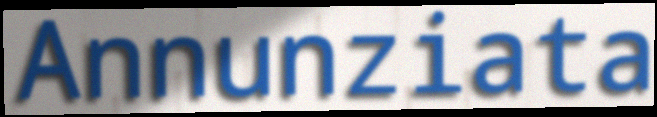
Annunziata